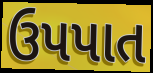
ઉપપાત